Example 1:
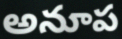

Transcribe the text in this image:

అనూప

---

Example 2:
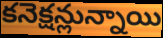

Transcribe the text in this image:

కనెక్షన్లున్నాయి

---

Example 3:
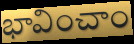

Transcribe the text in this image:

భావించాం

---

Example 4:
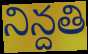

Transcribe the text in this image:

నిన్దతి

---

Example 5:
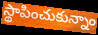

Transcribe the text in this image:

స్థాపించుకున్నాం